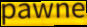
pawne